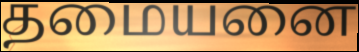
தமையனை